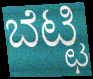
ಬೆಟ್ಟಿ